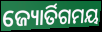
ଜ୍ୟୋର୍ତିଗମୟ